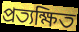
প্রত্যক্ষিত